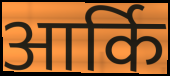
आर्कि